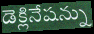
డెక్లినేషన్ను